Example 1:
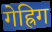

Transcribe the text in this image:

गेह्रिग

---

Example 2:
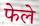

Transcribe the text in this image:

फेले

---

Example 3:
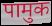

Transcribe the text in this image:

पामुक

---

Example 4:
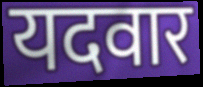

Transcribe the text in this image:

यदवार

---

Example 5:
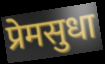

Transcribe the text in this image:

प्रेमसुधा